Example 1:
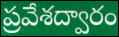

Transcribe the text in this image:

ప్రవేశద్వారం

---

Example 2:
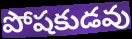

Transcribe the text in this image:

పోషకుడవు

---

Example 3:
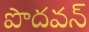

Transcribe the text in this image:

పొదవన్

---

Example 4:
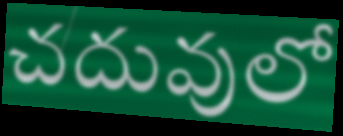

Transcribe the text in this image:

చదువులో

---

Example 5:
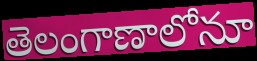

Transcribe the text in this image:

తెలంగాణాలోనూ